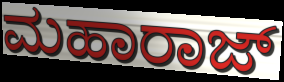
ಮಹಾರಾಜ್